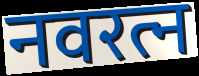
नवरत्‍न